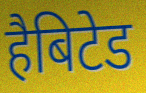
हैबिटेड